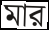
মার